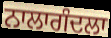
ਨਾਲਾਗੰਦਲਾ